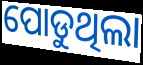
ପୋଡୁଥିଲା